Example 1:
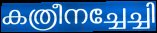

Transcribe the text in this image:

കത്രീനച്ചേച്ചി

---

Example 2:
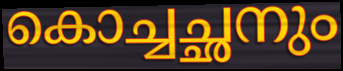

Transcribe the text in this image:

കൊച്ചച്ഛനും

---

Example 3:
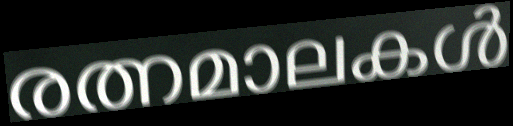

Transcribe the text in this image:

രത്നമാലകൾ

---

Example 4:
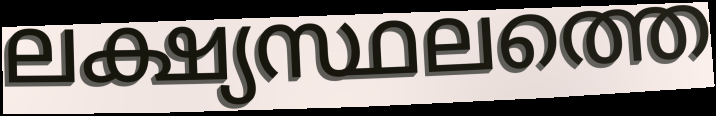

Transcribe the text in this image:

ലക്ഷ്യസ്ഥലത്തെ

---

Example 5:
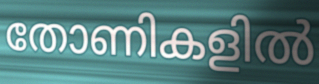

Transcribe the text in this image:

തോണികളിൽ